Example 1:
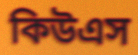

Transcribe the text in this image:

কিউএস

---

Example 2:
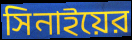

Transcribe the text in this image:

সিনাইয়ের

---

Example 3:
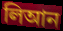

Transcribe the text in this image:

লিআন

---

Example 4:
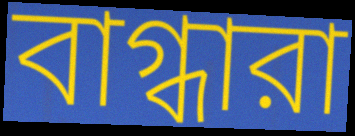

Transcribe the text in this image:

বাগ্ধারা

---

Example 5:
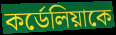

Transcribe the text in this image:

কর্ডেলিয়াকে